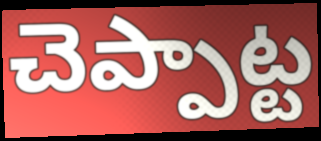
చెప్పాట్ట